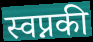
स्वप्नकी